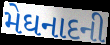
મેઘનાદની